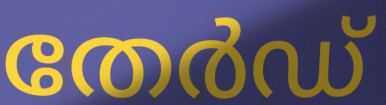
തേർഡ്